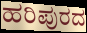
ಹರಿಪುರದ